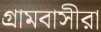
গ্রামবাসীরা